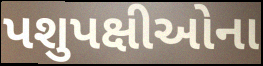
પશુપક્ષીઓના